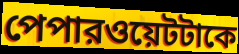
পেপারওয়েটটাকে